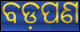
ବଡ଼ପଣ